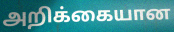
அறிக்கையான